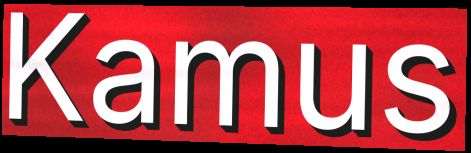
Kamus